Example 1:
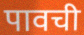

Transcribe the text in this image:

पावची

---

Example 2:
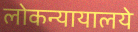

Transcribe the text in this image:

लोकन्यायालये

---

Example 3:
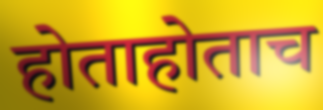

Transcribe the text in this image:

होताहोताच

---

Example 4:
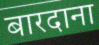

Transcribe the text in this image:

बारदाना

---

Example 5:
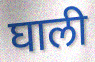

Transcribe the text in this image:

घाली